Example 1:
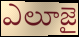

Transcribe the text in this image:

ఎలూజై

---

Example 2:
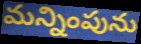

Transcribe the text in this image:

మన్నింపును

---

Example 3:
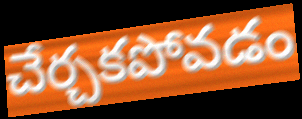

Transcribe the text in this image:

చేర్చకపోవడం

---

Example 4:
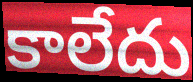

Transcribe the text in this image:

కాలేదు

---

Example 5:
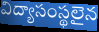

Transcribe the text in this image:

విద్యాసంస్థలైన